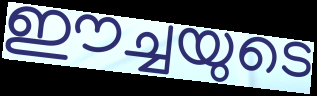
ഈച്ചയുടെ